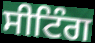
ਸੀਟਿੰਗ